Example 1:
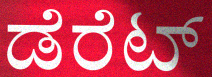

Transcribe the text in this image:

ಡೆರೆಟ್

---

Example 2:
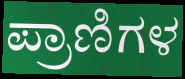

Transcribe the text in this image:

ಪ್ರಾಣಿಗಳ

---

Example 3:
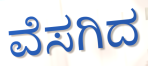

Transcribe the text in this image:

ವೆಸಗಿದ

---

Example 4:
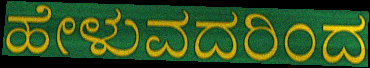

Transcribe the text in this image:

ಹೇಳುವದರಿಂದ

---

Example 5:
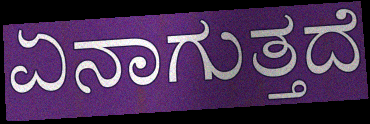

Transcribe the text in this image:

ಏನಾಗುತ್ತದೆ